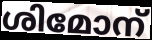
ശിമോന്